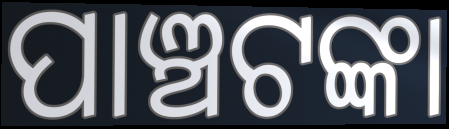
ପାଞ୍ଚଟଙ୍କା